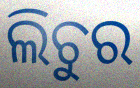
ଲିଚୁର